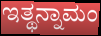
ಇತ್ಥನ್ನಾಮಂ